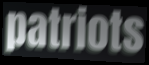
patriots